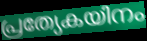
പ്രത്യേകയിനം